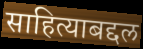
साहित्याबद्दल